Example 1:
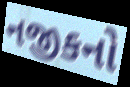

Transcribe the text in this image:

નજીકનો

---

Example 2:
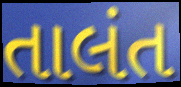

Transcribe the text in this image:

તાલંત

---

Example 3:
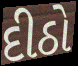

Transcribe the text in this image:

દીઠો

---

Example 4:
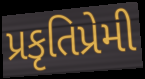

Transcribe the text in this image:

પ્રકૃતિપ્રેમી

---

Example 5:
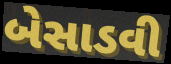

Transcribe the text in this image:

બેસાડવી